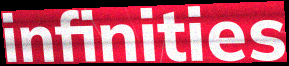
infinities